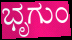
ಭೃಗುಂ